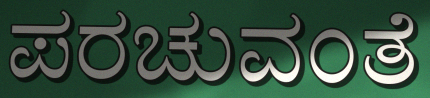
ಪರಚುವಂತೆ